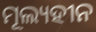
ମୂଲ୍ୟହୀନ